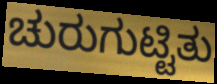
ಚುರುಗುಟ್ಟಿತು